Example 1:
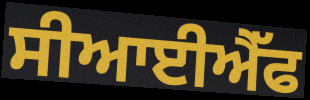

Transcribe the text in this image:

ਸੀਆਈਐੱਫ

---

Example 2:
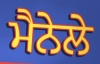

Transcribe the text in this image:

ਮੈਨੇਲੇ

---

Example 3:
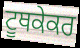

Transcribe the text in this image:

ਟੂਥਕੇਕਰ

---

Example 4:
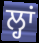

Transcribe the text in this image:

ਲ੍ਹਾਂ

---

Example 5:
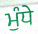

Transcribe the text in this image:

ਮੁੰਧੇ